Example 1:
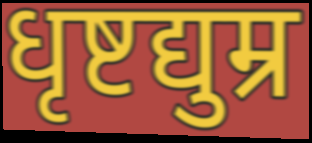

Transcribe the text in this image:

धृष्टद्युम्र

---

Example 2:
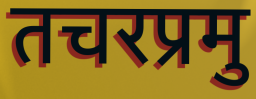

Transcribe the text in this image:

तचरप्रमु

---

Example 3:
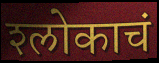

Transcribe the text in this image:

श्लोकाचं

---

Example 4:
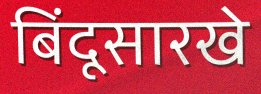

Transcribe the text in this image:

बिंदूसारखे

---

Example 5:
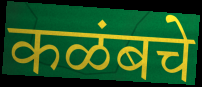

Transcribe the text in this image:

कळंबचे